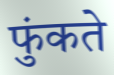
फुंकते